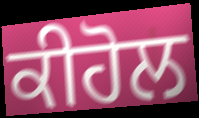
ਕੀਹੋਲ